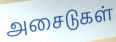
அசைடுகள்